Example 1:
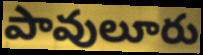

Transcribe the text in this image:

పావులూరు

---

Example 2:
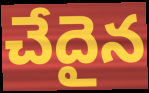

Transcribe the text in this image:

చేదైన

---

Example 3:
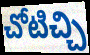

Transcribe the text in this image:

చోటిచ్చి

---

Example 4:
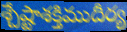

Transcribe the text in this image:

శ్చేష్టాశక్తిముదీర్య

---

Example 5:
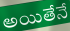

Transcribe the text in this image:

అయితేనే